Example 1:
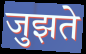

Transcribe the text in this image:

जुझते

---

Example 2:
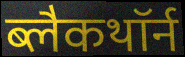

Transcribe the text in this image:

ब्लैकथॉर्न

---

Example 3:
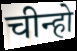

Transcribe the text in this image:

चीन्हो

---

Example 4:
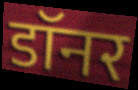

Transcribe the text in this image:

डॉनर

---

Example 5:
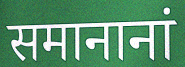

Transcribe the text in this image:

समानानां